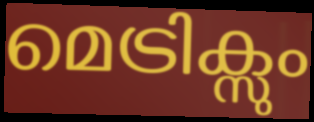
മെട്രിക്സും